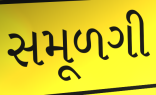
સમૂળગી